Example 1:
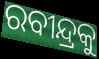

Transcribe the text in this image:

ରବୀନ୍ଦ୍ରକୁ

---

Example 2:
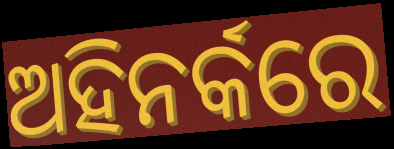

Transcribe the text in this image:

ଅହିନର୍କରେ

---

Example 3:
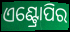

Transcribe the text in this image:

ଏଣ୍ଟ୍ରୋପିର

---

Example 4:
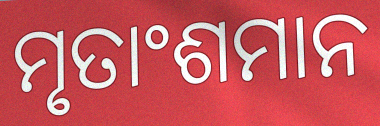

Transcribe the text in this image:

ମୃତାଂଶମାନ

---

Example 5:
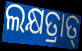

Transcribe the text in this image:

ଲକ୍ଷତ୍ରାତ୍